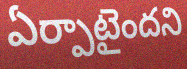
ఏర్పాటైందని